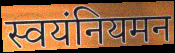
स्वयंनियमन